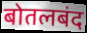
बोतलबंद